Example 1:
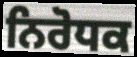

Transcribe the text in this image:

ਨਿਰੋਧਕ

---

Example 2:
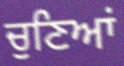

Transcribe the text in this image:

ਚੁਣਿਆਂ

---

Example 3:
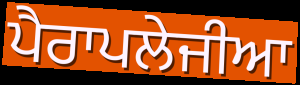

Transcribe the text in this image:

ਪੈਰਾਪਲੇਜੀਆ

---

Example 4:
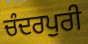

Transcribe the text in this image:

ਚੰਦਰਪੁਰੀ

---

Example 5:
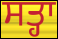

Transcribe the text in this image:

ਸਤ੍ਹਾ